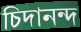
চিদানন্দ